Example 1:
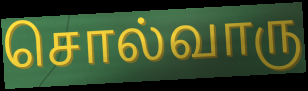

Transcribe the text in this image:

சொல்வாரு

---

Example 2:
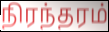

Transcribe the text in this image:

நிரந்தரம்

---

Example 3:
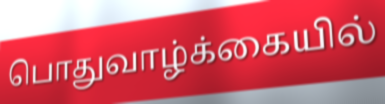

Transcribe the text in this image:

பொதுவாழ்க்கையில்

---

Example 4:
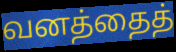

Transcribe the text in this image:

வனத்தைத்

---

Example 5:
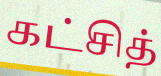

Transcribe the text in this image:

கட்சித்